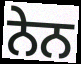
ਨੇਨ